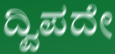
ದ್ವಿಪದೇ